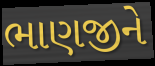
ભાણજીને